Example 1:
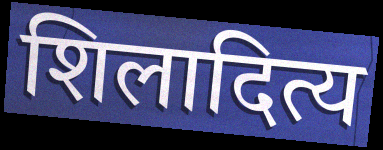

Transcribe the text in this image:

शिलादित्य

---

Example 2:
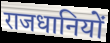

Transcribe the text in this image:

राजधानियों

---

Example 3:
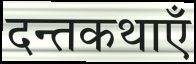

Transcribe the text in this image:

दन्तकथाएँ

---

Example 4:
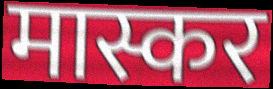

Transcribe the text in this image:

मास्कर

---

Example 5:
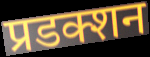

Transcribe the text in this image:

प्रडक्शन